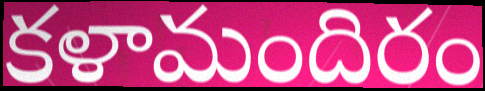
కళామందిరం